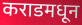
कराडमधून